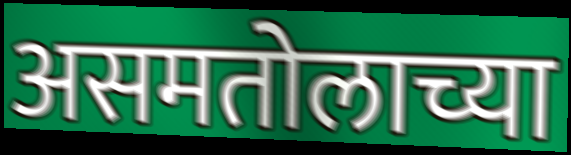
असमतोलाच्या